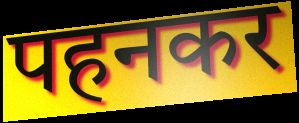
पहनकर